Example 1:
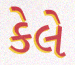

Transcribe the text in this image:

કેલે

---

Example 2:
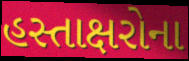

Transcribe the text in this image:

હસ્તાક્ષરોના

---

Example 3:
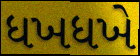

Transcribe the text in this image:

ધખધખે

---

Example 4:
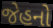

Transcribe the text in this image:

જેહનો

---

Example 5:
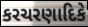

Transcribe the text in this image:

કરચરણાદિકે